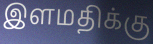
இளமதிக்கு